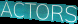
ACTORS